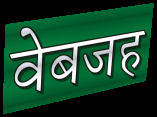
वेबजह